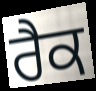
ਰੈਕ